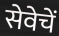
सेवेचें